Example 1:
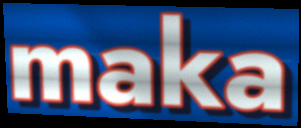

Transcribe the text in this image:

maka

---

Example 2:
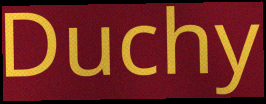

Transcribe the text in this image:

Duchy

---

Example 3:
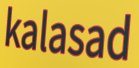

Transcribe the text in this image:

kalasad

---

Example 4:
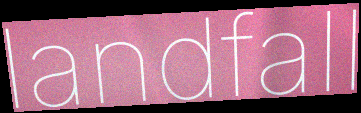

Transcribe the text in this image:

landfall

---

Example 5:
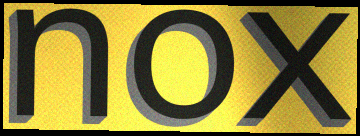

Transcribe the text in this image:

nox